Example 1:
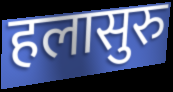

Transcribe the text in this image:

हलासुरु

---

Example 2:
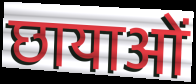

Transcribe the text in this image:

छायाओं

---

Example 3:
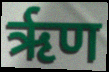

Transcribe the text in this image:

ऋृण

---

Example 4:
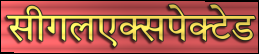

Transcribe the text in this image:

सीगलएक्सपेक्टेड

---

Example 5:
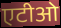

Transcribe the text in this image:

एटीओ